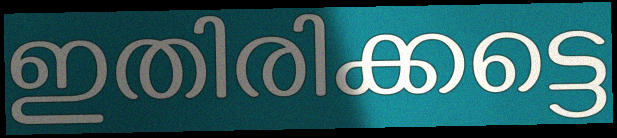
ഇതിരിക്കട്ടെ